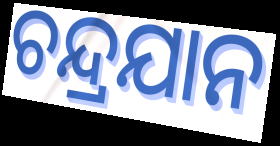
ଚନ୍ଦ୍ରଯାନ